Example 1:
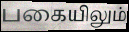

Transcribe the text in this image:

பகையிலும்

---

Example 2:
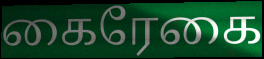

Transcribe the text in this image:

கைரேகை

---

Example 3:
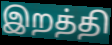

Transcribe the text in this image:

இறத்தி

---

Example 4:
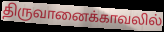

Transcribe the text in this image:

திருவானைக்காவலில்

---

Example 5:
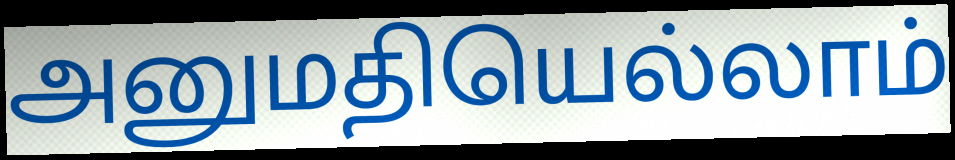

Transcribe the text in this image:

அனுமதியெல்லாம்